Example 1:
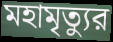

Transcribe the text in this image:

মহামৃত্যুর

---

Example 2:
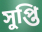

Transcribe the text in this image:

সুপ্তি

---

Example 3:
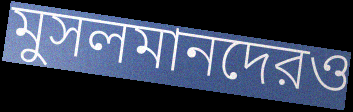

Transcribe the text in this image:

মুসলমানদেরও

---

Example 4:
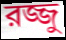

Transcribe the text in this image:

রজ্জু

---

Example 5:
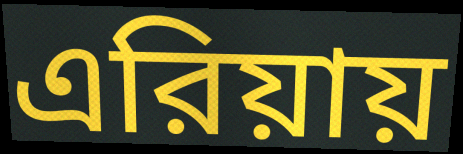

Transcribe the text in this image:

এরিয়ায়